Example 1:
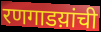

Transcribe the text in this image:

रणगाडय़ांची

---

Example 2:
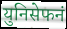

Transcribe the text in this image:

युनिसेफनं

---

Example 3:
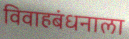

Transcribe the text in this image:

विवाहबंधनाला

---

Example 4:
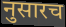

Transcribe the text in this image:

नुसारच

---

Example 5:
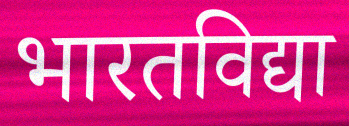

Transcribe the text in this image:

भारतविद्या